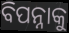
ବିପନ୍ନାକୁ